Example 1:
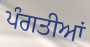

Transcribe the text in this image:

ਪੰਗਤੀਆਂ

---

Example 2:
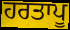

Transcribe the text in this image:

ਹਰਤਾਪੂ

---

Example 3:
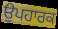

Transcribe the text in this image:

ਉਪਹਾਰਕ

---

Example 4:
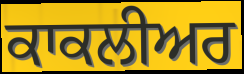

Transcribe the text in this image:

ਕਾਕਲੀਅਰ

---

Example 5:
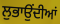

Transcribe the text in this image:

ਲੁਭਾਉਂਦੀਆਂ